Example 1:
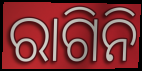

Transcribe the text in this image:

ରାଗିନି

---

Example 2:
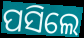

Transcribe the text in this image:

ପସିଲେ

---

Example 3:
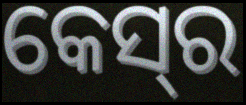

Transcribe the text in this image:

କେସ୍‌ର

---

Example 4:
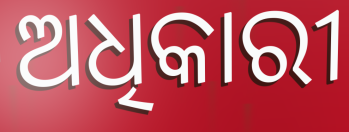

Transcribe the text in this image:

ଅଧିକାରୀ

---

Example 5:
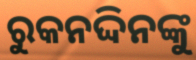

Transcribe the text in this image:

ରୁକନଦ୍ଦିନଙ୍କୁ